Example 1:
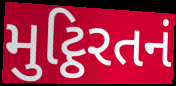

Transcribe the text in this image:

મુટ્ઠિરતનં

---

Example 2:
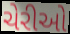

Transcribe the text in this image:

ચેરીઓ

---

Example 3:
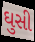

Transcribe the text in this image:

ઘુસી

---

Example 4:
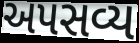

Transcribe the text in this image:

અપસવ્ય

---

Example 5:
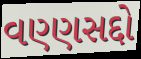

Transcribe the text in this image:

વણ્ણસદ્દો